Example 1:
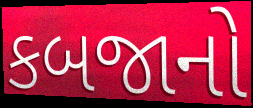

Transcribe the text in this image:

કબજાનો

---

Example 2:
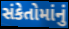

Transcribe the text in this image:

સંકેતોમાંનું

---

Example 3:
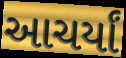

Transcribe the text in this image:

આચર્યાં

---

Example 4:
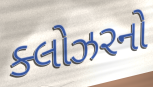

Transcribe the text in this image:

ક્લોઝરનો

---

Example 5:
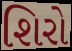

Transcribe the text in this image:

શિરો